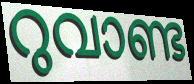
റുവാണ്ട